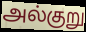
அல்குறு